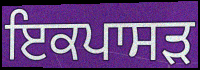
ਇਕਪਾਸੜ